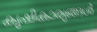
കൃഷികാര്യങ്ങൾ